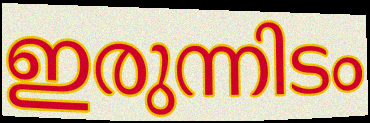
ഇരുന്നിടം